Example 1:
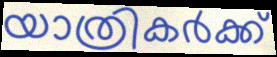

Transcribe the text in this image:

യാത്രികർക്ക്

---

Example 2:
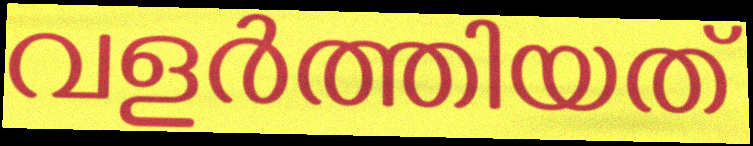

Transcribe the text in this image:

വളർത്തിയത്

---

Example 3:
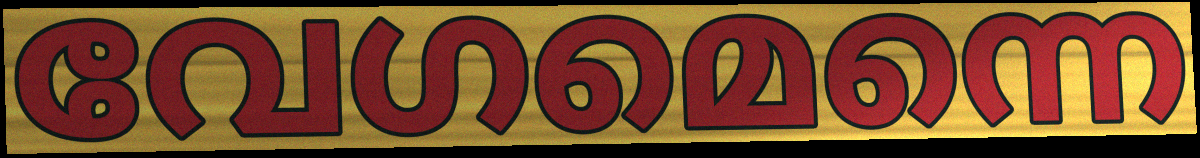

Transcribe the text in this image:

വേഗമെന്നെ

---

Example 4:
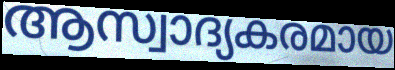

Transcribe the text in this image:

ആസ്വാദ്യകരമായ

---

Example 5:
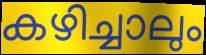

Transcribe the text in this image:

കഴിച്ചാലും